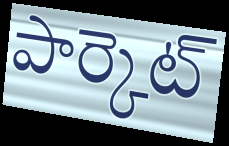
పార్కెట్